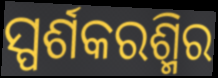
ସ୍ପର୍ଶକରଶ୍ମିର